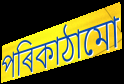
পৰিকাঠামো